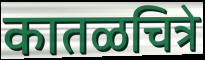
कातळचित्रे